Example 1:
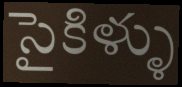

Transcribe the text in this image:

సైకిళ్ళు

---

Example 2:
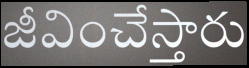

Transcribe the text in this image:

జీవించేస్తారు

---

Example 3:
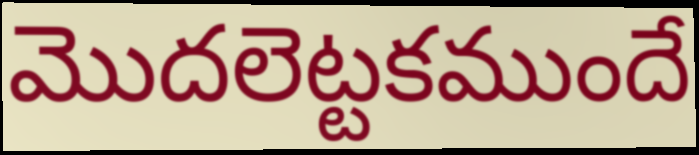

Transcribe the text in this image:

మొదలెట్టకముందే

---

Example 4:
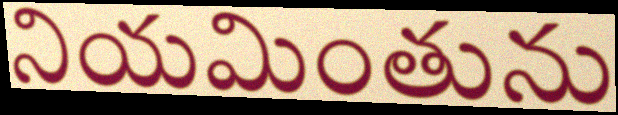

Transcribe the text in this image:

నియమింతును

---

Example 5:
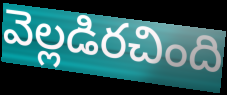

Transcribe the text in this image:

వెల్లడిరచింది